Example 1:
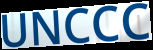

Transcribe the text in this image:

UNCCC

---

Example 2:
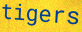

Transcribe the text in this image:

tigers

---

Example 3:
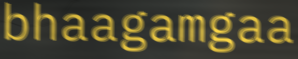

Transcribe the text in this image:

bhaagamgaa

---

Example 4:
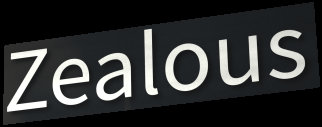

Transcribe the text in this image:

Zealous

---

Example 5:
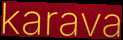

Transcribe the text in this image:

karava